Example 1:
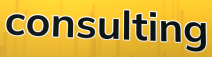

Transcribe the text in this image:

consulting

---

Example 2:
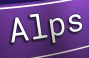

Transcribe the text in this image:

Alps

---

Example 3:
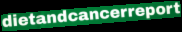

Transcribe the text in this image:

dietandcancerreport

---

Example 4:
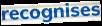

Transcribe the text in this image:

recognises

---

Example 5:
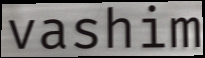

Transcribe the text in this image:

vashim